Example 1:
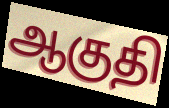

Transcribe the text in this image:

ஆகுதி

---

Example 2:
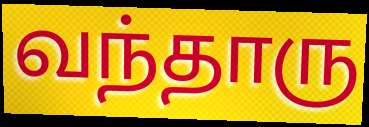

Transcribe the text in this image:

வந்தாரு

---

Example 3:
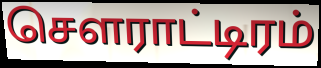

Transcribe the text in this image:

சௌராட்டிரம்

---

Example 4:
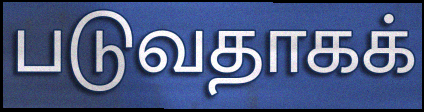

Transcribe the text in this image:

படுவதாகக்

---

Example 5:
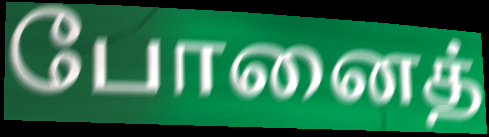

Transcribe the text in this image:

போனைத்